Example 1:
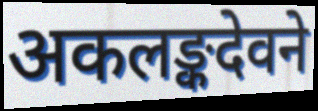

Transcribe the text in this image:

अकलङ्कदेवने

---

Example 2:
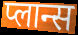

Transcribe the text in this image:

प्लान्स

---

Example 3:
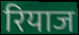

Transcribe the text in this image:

रियाज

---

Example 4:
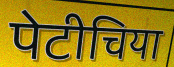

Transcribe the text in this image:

पेटीचिया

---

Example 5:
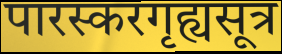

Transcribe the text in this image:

पारस्करगृह्यसूत्र